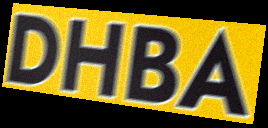
DHBA